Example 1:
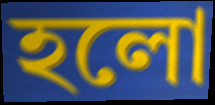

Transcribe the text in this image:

হলো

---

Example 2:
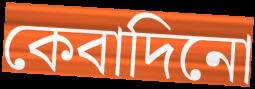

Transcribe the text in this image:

কেবাদিনো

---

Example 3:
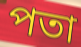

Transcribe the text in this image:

পতা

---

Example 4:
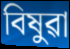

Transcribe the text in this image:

বিষুৱা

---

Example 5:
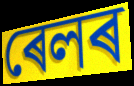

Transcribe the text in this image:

ৰেলৰ